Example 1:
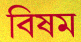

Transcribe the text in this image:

বিষম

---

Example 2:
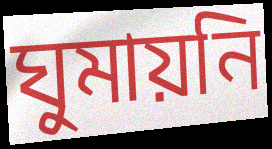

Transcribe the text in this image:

ঘুমায়নি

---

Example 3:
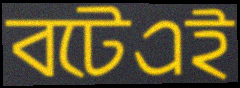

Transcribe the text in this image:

বটেএই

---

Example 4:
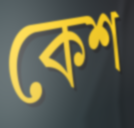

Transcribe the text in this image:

কেশ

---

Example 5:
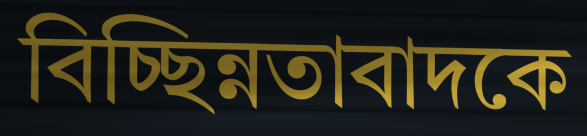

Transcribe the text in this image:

বিচ্ছিন্নতাবাদকে